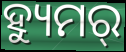
ହ୍ୟୁମର୍